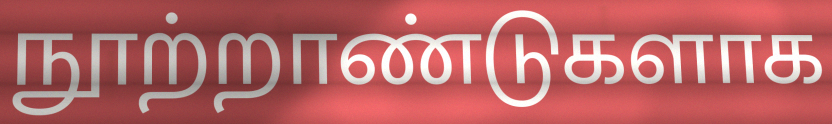
நூற்றாண்டுகளாக